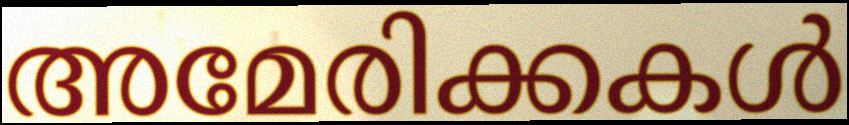
അമേരിക്കകൾ